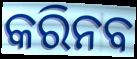
କରିନବ